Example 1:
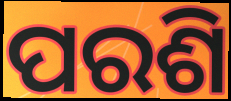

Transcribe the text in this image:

ପରଶି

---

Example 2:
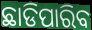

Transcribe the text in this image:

ଛାଡିପାରିବ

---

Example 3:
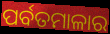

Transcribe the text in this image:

ପର୍ବତମାଳାର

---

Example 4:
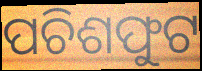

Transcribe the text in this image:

ପଚିଶଫୁଟ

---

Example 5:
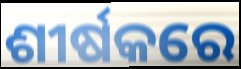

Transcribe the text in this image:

ଶୀର୍ଷକରେ